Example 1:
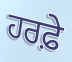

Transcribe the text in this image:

ਹਰਫ਼ੇ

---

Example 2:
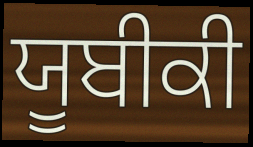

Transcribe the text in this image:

ਯੂਬੀਕੀ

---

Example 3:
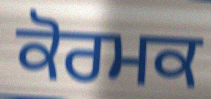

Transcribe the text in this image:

ਕੋਰਮਕ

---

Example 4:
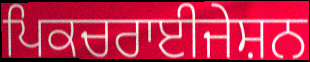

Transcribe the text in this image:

ਪਿਕਚਰਾਈਜੇਸ਼ਨ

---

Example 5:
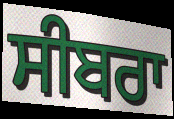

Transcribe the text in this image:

ਸੀਬਰਾ